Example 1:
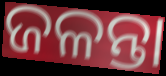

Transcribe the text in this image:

ଜଳନ୍ତା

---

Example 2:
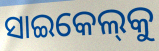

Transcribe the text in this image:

ସାଇକେଲ୍‌କୁ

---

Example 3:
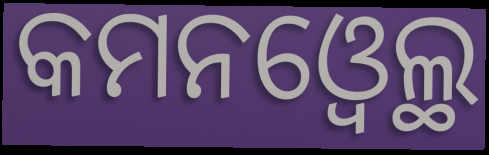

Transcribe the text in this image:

କମନଓ୍ବେଲ୍ଥ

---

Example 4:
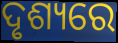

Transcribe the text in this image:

ଦୃଶ୍ୟରେ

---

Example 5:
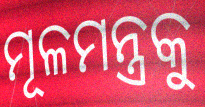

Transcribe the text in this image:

ମୂଳମନ୍ତ୍ରକୁ